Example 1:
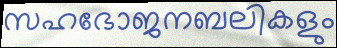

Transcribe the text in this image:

സഹഭോജനബലികളും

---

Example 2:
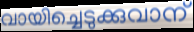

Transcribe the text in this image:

വായിച്ചെടുക്കുവാന്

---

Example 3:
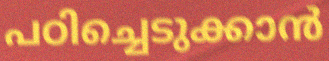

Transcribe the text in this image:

പഠിച്ചെടുക്കാൻ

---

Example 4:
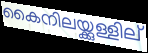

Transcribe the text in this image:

കൈനിലയ്ക്കുള്ളില്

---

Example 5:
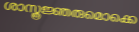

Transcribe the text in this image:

ശാസ്ത്രജ്ഞരുമൊക്കെ